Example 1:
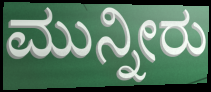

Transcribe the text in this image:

ಮುನ್ನೀರು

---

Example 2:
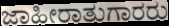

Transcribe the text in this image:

ಜಾಹೀರಾತುಗಾರರು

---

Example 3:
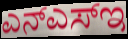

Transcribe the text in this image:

ಎನ್ಎಸ್ಇ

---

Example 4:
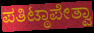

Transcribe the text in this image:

ಪತಿಟ್ಠಾಪೇತ್ವಾ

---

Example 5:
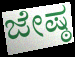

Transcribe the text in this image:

ಜೇಷ್ಠ